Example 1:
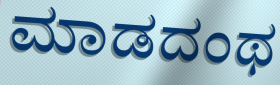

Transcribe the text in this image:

ಮಾಡದಂಥ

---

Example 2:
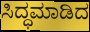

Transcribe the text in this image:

ಸಿದ್ಧಮಾಡಿದ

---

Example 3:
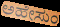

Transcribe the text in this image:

ಅಹೇಸುಂ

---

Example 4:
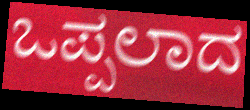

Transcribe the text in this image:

ಒಪ್ಪಲಾದ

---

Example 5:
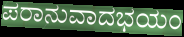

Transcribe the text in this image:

ಪರಾನುವಾದಭಯಂ